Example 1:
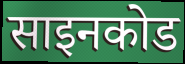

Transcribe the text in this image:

साइनकोड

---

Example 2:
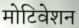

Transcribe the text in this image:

मोटिवेशन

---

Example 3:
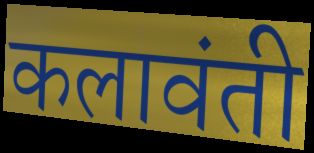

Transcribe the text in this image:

कलावंती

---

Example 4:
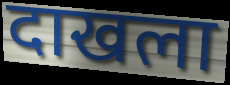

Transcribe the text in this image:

दाखला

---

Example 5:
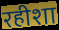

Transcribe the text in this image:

रहीशा